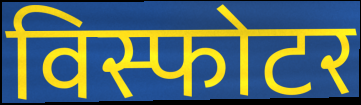
विस्फोटर